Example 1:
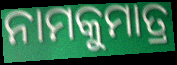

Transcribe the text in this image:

ନାମକୁମାତ୍ର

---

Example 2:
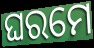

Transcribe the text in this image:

ଘରମେ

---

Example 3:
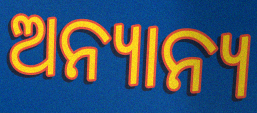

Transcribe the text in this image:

ଅନ୍ଯାନ୍ଯ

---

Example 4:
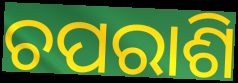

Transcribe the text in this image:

ଚପରାଶି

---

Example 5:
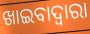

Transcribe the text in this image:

ଖାଇବାଦ୍ଵାରା